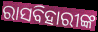
ରାସବିହାରୀଙ୍କ